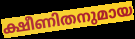
ക്ഷീണിതനുമായ